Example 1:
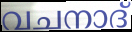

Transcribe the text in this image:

വചനാദ്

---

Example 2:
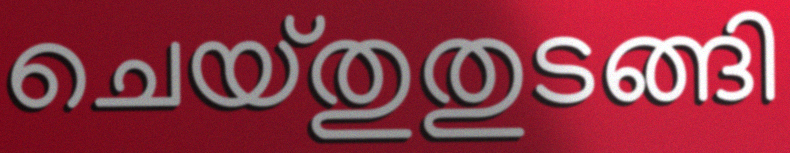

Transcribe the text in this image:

ചെയ്തുതുടങ്ങി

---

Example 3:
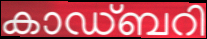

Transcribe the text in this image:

കാഡ്ബറി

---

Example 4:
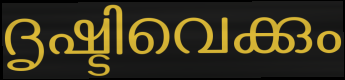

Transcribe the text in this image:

ദൃഷ്ടിവെക്കും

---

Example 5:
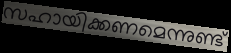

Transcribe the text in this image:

സഹായിക്കണമെന്നുണ്ട്